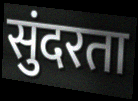
सुंदरता